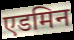
एडमिन